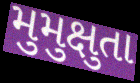
મુમુક્ષુતા